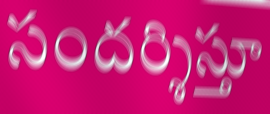
సందర్శిస్తూ